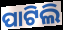
ପାଟିଲି